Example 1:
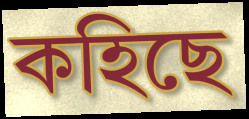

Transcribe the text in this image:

কহিছে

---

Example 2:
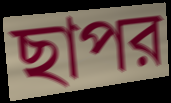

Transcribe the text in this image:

ছাপর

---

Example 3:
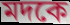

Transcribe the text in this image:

মদকে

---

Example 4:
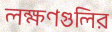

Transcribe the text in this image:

লক্ষণগুলির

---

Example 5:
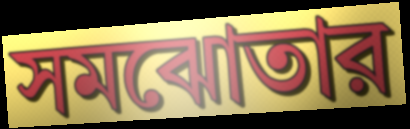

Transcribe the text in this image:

সমঝোতার